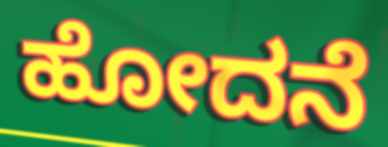
ಹೋದನೆ